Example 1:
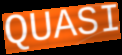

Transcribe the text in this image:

QUASI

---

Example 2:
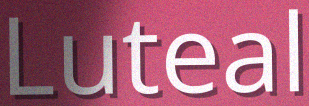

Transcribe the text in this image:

Luteal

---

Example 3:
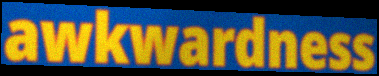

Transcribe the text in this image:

awkwardness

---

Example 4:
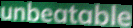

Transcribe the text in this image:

unbeatable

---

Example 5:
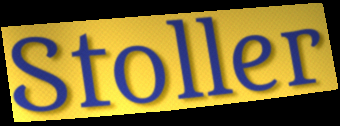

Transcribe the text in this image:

Stoller